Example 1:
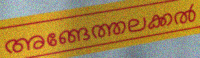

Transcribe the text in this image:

അങ്ങേത്തലക്കൽ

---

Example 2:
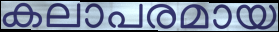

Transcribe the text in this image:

കലാപരമായ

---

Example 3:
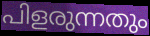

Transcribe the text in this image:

പിളരുന്നതും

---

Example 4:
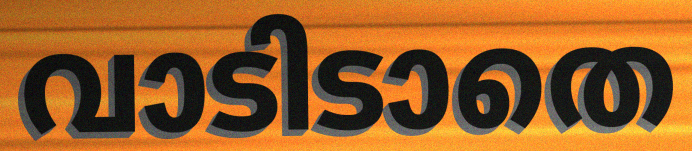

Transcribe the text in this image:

വാടിടാതെ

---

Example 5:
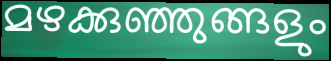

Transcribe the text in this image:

മഴക്കുഞ്ഞുങ്ങളും